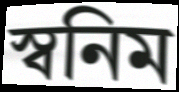
স্বনিম